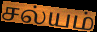
சல்யம்